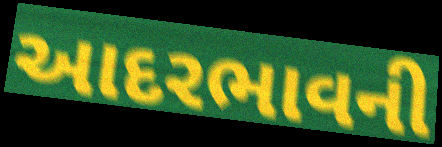
આદરભાવની